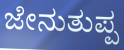
ಜೇನುತುಪ್ಪ